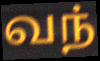
வந்